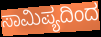
ಸಾಮಿಪ್ಯದಿಂದ